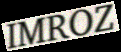
IMROZ